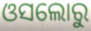
ଓସଲୋରୁ